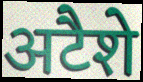
अटैशे